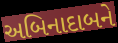
અબિનાદાબને